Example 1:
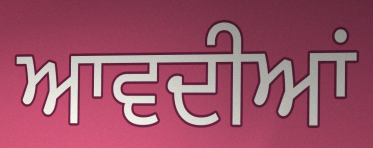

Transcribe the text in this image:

ਆਵਦੀਆਂ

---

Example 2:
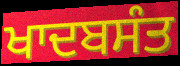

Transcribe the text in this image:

ਖਾਦਬਸੰਤ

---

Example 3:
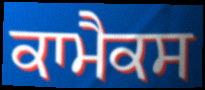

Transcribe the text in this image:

ਕਾਮੈਕਸ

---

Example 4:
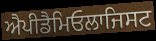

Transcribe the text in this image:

ਐਪੀਡੈਮਿਓਲਾਜਿਸਟ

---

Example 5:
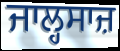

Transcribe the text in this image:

ਜਾਲ੍ਹਸਾਜ਼